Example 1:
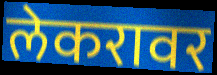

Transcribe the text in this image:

लेकरावर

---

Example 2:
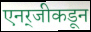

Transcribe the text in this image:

एनर्जीकडून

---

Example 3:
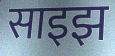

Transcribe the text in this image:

साइझ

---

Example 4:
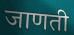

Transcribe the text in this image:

जाणती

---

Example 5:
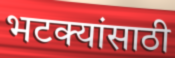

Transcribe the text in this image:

भटक्यांसाठी